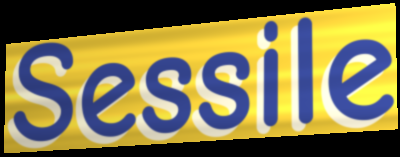
Sessile